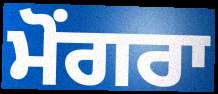
ਮੋਂਗਰਾ